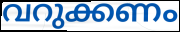
വറുക്കണം